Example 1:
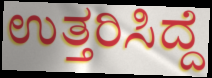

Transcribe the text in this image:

ಉತ್ತರಿಸಿದ್ದೆ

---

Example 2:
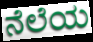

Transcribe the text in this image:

ನೆಲೆಯ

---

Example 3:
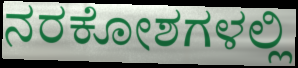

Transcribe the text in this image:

ನರಕೋಶಗಳಲ್ಲಿ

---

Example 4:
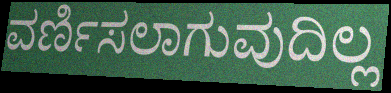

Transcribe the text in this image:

ವರ್ಣಿಸಲಾಗುವುದಿಲ್ಲ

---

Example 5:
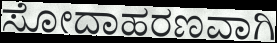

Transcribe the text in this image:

ಸೋದಾಹರಣವಾಗಿ